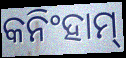
କନିଂହାମ୍